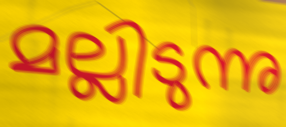
മല്ലിടുന്നു